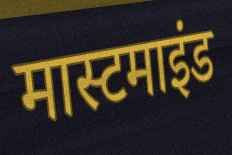
मास्टमाइंड